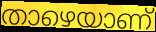
താഴെയാണ്